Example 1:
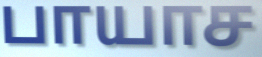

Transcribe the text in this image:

பாயாச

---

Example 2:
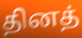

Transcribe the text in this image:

தினத்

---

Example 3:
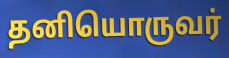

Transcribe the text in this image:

தனியொருவர்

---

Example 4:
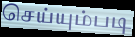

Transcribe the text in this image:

செய்யும்படி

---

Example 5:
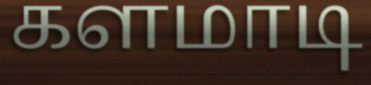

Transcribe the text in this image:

களமாடி